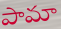
పామా